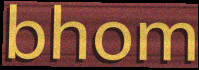
bhom